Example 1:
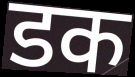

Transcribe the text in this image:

डक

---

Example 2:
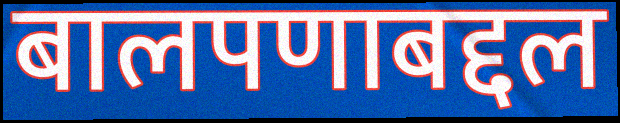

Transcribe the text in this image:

बालपणाबद्दल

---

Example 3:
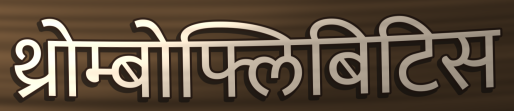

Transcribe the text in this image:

थ्रोम्बोफ्लिबिटिस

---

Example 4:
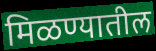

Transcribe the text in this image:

मिळण्यातील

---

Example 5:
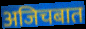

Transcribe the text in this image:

अजिचबात